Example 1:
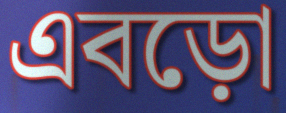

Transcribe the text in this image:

এবড়ো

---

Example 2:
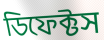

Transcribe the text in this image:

ডিফেক্টস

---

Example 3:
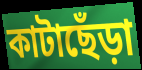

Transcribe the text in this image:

কাটাছেঁড়া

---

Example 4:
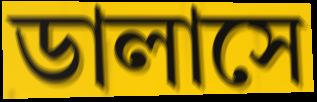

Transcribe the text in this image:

ডালাসে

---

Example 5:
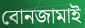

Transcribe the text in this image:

বোনজামাই